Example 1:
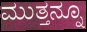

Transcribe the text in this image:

ಮುತ್ತನ್ನೂ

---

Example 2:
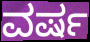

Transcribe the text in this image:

ವರ್ಷ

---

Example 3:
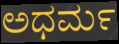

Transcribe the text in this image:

ಅಧರ್ಮ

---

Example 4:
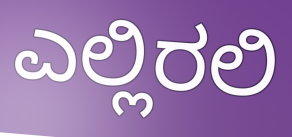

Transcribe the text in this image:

ಎಲ್ಲಿರಲಿ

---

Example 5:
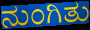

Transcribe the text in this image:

ನುಂಗಿತು